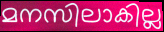
മനസിലാകില്ല